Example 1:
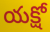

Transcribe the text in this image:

యక్షో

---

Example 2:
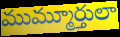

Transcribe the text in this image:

ముమ్మూర్తులా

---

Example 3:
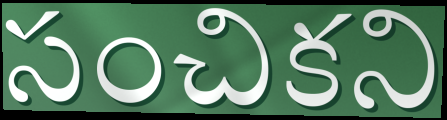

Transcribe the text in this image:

సంచికని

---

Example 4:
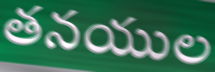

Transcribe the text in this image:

తనయుల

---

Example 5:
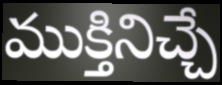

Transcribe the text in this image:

ముక్తినిచ్చే